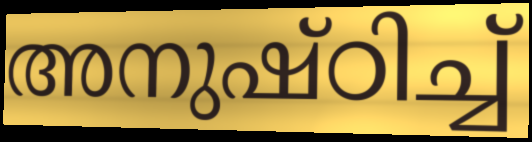
അനുഷ്ഠിച്ച്